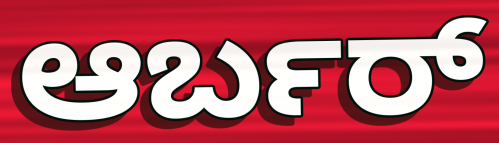
ಆರ್ಬರ್